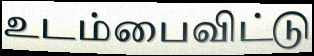
உடம்பைவிட்டு